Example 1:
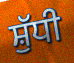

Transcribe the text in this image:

ਸ਼ੁੱਧੀ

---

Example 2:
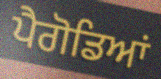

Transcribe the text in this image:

ਪੈਗੋਡਿਆਂ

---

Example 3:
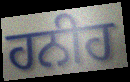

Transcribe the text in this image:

ਹਨੀਹ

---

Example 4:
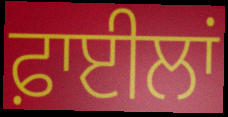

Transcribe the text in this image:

ਫ਼ਾਈਲਾਂ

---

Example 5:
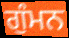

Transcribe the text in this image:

ਗੁੰਮਨ